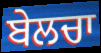
ਬੇਲਚਾ